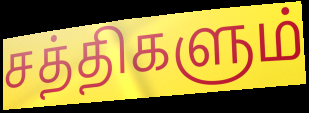
சத்திகளும்